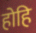
होहि